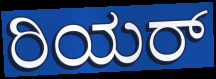
ರಿಯರ್